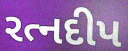
રત્નદીપ